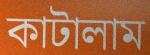
কাটালাম